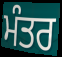
ਮੰਤਰ